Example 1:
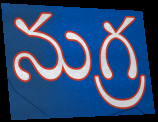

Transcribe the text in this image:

నుగ్ర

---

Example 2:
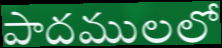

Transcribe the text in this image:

పాదములలో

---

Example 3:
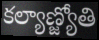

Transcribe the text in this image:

కల్యాణ్జ్యోతి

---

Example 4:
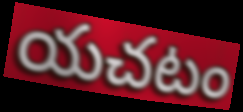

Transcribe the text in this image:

యచటం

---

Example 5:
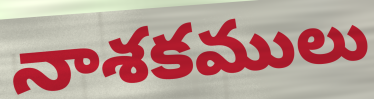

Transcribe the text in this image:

నాశకములు